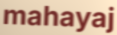
mahayaj